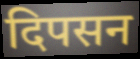
दिपसन